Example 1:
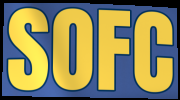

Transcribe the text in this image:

SOFC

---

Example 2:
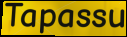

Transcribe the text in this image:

Tapassu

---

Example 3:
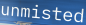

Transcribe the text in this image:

unmisted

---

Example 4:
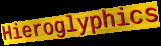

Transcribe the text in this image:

Hieroglyphics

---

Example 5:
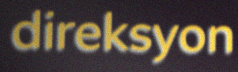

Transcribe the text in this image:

direksyon